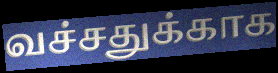
வச்சதுக்காக